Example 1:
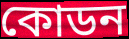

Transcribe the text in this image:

কোডন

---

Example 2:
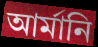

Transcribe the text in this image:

আর্মানি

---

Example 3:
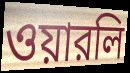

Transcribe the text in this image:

ওয়ারলি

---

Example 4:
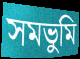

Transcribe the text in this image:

সমভুমি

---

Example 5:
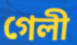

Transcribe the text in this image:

গেলী